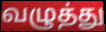
வழுத்து